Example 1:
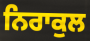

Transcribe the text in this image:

ਨਿਰਾਕੁਲ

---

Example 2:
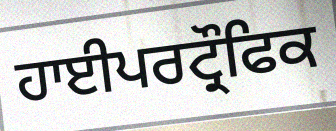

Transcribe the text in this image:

ਹਾਈਪਰਟ੍ਰੌਫਿਕ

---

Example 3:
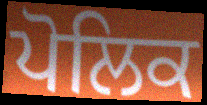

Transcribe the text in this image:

ਪੋਲਿਕ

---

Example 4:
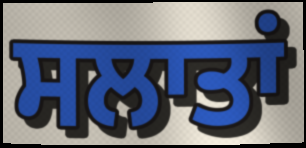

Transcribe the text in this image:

ਸਲਾਤਾਂ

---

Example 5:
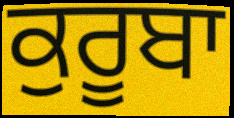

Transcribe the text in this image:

ਕੁਰੂਬਾ